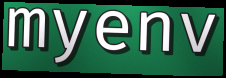
myenv